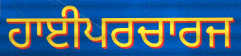
ਹਾਈਪਰਚਾਰਜ